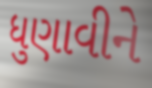
ધુણાવીને